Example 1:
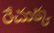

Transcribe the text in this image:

రేచుక్క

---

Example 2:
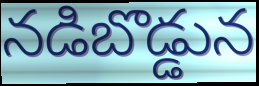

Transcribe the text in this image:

నడిబొడ్డున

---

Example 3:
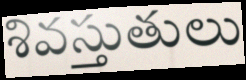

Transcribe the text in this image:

శివస్తుతులు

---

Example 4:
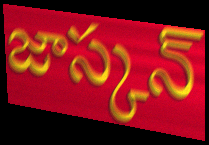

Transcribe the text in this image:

జాస్కన్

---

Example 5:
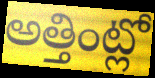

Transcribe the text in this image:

అత్తింట్లో